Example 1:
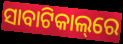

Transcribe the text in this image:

ସାବାଟିକାଲ୍‌ରେ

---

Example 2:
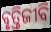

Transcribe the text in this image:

ବୃତ୍ତିଜୀବି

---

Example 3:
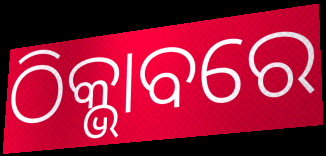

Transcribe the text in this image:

ଠିକ୍ଭାବରେ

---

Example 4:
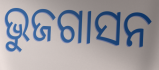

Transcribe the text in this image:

ଭୁଜଗାସନ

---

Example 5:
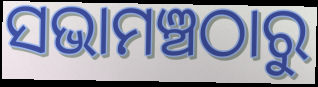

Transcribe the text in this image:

ସଭାମଞ୍ଚଠାରୁ